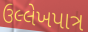
ઉલ્લેખપાત્ર